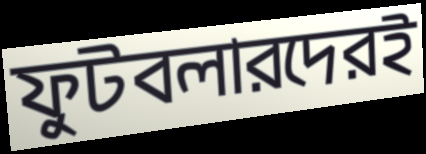
ফুটবলারদেরই